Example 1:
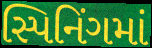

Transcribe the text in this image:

સ્પિનિંગમાં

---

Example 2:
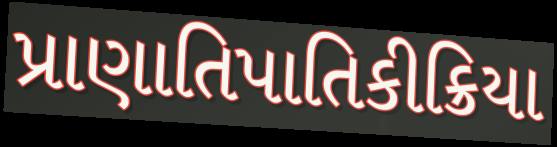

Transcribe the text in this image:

પ્રાણાતિપાતિકીક્રિયા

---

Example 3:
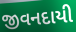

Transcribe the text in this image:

જીવનદાયી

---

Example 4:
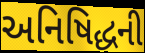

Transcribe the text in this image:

અનિષિદ્ધની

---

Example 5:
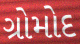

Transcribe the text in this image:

ગ્રોમોદ